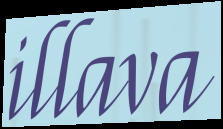
illava